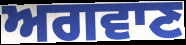
ਅਗਵਾਣ